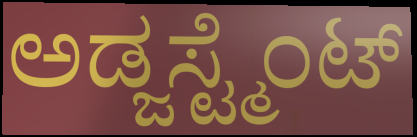
ಅಡ್ಜಸ್ಟ್ಮೆಂಟ್